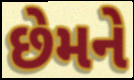
છેમને